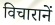
विचारानें